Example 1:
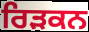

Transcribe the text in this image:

ਰਿੜਕਨ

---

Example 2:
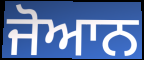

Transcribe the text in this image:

ਜੋਆਨ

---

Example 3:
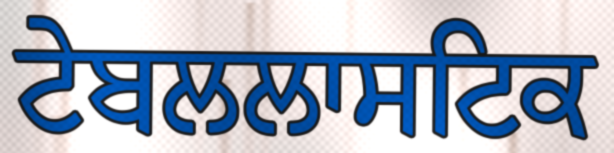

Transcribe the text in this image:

ਟੇਬਲਲਾਸਟਿਕ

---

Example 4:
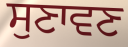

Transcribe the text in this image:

ਸੁਣਾਵਣ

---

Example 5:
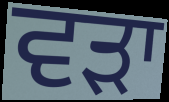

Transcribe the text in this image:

ਵੜਾ